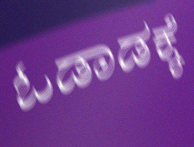
ಓಡಾಡಕ್ಕೆ